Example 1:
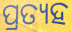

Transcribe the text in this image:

ପ୍ରତ୍ଯହ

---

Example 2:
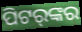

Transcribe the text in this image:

ପିଟର୍‌ଙ୍କର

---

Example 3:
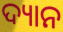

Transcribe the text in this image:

ଦ୍ୟାନ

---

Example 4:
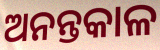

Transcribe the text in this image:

ଅନନ୍ତକାଳ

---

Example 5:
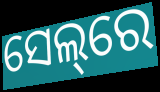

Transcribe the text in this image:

ସେଲ୍‌ରେ